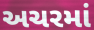
અચરમાં